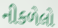
નીકળેલો